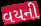
વયની